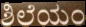
ಶಿಲೆಯಂ